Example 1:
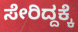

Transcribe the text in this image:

ಸೇರಿದ್ದಕ್ಕೆ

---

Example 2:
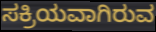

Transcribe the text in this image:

ಸಕ್ರಿಯವಾಗಿರುವ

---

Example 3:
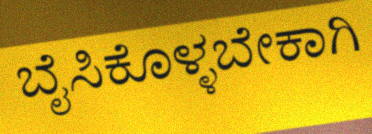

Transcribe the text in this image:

ಬೈಸಿಕೊಳ್ಳಬೇಕಾಗಿ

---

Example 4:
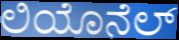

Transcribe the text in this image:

ಲಿಯೊನೆಲ್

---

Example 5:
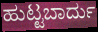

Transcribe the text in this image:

ಹುಟ್ಟಬಾರ್ದು